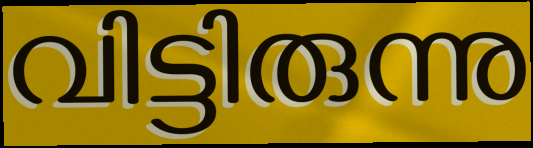
വിട്ടിരുന്നു